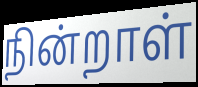
நின்றாள்